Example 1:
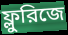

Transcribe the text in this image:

ফ্লুরিজে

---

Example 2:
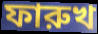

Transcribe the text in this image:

ফারুখ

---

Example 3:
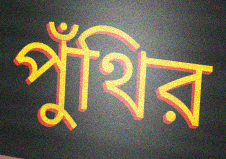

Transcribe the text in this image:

পুঁথির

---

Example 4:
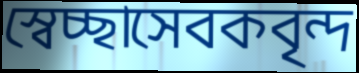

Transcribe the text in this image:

স্বেচ্ছাসেবকবৃন্দ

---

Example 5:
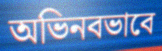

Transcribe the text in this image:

অভিনবভাবে